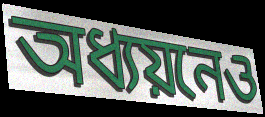
অধ্যয়নেও